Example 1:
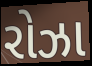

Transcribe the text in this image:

રોઝા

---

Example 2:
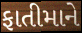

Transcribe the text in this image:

ફાતીમાને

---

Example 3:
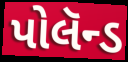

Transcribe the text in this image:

પોલૅન્ડ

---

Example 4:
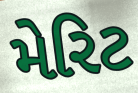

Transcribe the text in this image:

મેરિટ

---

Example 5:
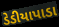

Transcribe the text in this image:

ડેડીયાપાડા